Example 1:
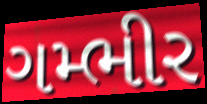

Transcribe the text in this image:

ગમ્ભીર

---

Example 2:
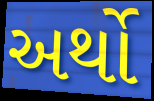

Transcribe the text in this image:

અર્થો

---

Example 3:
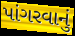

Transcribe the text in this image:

પાંગરવાનું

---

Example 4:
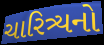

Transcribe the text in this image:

ચારિત્ર્યનો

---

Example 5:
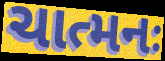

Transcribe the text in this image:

ચાત્મનઃ